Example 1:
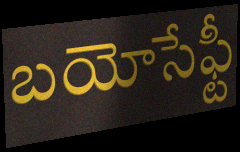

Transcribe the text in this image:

బయోసేఫ్టీ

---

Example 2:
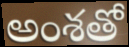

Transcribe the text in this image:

అంశతో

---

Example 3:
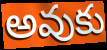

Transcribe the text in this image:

అవుకు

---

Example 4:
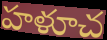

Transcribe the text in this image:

హళూచ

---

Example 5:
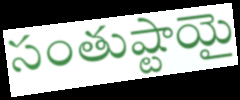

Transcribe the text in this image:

సంతుష్టాయై